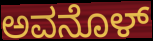
ಅವನೊಳ್